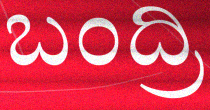
ಬಂದ್ರಿ